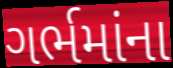
ગર્ભમાંના